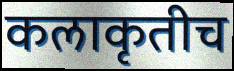
कलाकृतीच